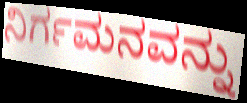
ನಿರ್ಗಮನವನ್ನು